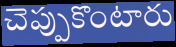
చెప్పుకొంటారు